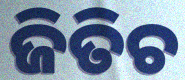
ଜିତିଚ